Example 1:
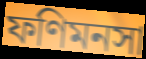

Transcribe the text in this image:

ফণিমনসা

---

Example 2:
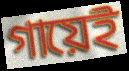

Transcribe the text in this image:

গায়েই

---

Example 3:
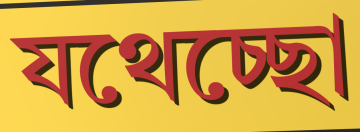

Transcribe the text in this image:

যথেচ্ছো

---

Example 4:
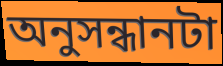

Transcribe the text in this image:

অনুসন্ধানটা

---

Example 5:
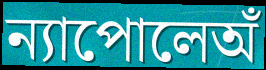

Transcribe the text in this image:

ন্যাপোলেঅঁ